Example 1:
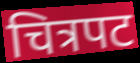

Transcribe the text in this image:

चित्रपट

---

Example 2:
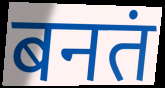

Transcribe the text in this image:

बनतं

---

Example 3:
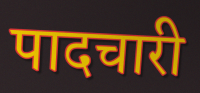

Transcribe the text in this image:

पादचारी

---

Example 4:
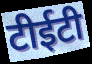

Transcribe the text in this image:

टीईटी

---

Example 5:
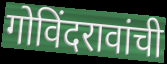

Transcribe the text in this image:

गोविंदरावांची